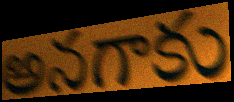
అనగాకు